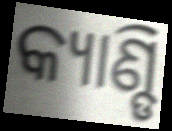
କ୍ୟାଣ୍ଡି